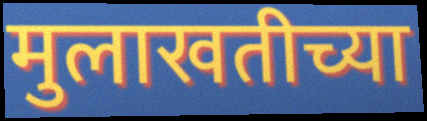
मुलाखतीच्या